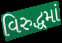
વિરુદ્ધમાં